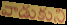
వాడుకుని